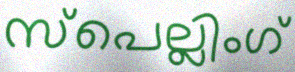
സ്പെല്ലിംഗ്